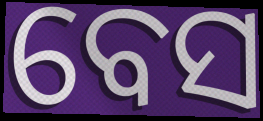
ବେସ